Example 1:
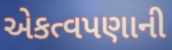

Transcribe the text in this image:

એકત્વપણાની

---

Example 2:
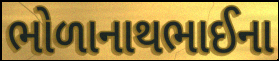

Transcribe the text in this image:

ભોળાનાથભાઈના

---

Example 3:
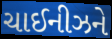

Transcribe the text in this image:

ચાઈનીઝને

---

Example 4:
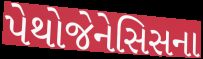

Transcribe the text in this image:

પેથોજેનેસિસના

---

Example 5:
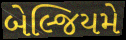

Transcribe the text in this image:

બેલ્જિયમે